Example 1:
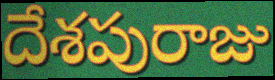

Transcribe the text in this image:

దేశపురాజు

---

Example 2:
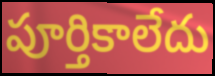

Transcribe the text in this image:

పూర్తికాలేదు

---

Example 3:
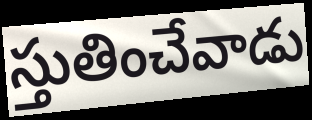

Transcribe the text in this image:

స్తుతించేవాడు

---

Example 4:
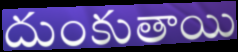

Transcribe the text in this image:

దుంకుతాయి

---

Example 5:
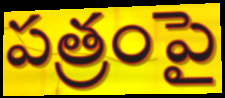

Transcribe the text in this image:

పత్రంపై